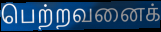
பெற்றவனைக்